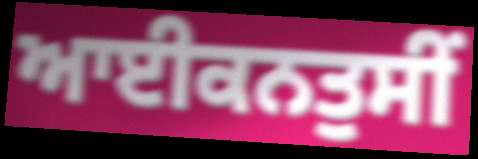
ਆਈਕਨਤੁਸੀਂ